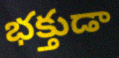
భక్తుడా